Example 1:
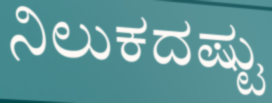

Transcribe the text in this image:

ನಿಲುಕದಷ್ಟು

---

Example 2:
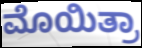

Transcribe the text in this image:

ಮೊಯಿತ್ರಾ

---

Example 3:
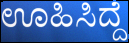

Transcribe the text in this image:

ಊಹಿಸಿದ್ದೆ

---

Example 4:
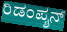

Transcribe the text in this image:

ರಿಡಂಪ್ಶನ್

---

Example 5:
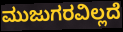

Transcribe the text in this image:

ಮುಜುಗರವಿಲ್ಲದೆ